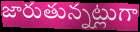
జారుతున్నట్లుగా